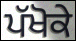
ਪੱਖੋਕੇ